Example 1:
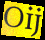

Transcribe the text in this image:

Oij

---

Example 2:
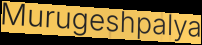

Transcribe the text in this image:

Murugeshpalya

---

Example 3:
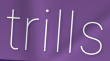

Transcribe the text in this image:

trills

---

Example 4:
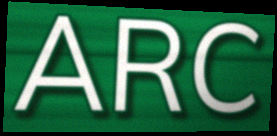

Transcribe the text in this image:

ARC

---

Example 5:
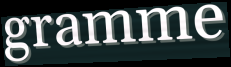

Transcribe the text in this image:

gramme